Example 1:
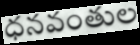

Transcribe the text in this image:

ధనవంతుల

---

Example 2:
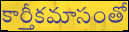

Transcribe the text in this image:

కార్తీకమాసంతో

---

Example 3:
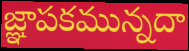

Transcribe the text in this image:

జ్ఞాపకమున్నదా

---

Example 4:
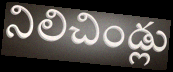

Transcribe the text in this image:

నిలిచిండ్లు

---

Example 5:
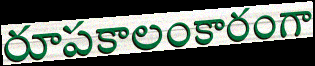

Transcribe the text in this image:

రూపకాలంకారంగా